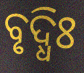
ବୃଦ୍ଧିଃ